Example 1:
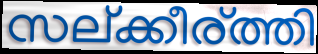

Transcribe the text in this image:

സല്ക്കീര്ത്തി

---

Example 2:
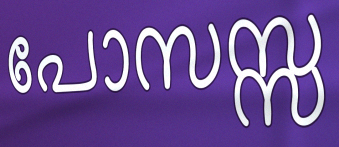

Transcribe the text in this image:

പോസസ്സ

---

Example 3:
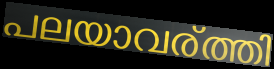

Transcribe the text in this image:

പലയാവര്ത്തി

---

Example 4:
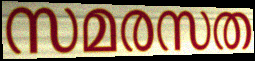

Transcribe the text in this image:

സമരസത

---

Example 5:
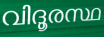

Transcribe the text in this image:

വിദൂരസ്ഥ